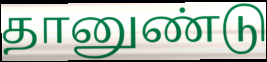
தானுண்டு